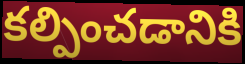
కల్పించడానికి